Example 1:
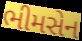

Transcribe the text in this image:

ભીમસેન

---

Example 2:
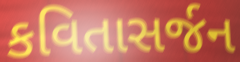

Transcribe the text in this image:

કવિતાસર્જન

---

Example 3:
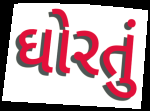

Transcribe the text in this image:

ઘોરતું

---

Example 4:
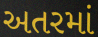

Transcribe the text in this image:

અતરમાં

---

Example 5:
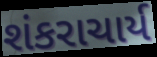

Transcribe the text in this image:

શંકરાચાર્ય